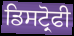
ਡਿਸਟ੍ਰੋਫੀ